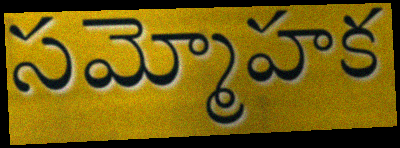
సమ్మోహక